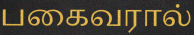
பகைவரால்